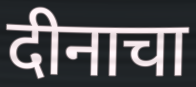
दीनाचा